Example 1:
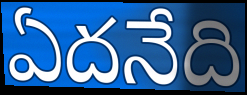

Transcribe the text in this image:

ఏదనేది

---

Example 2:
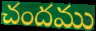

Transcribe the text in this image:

చందము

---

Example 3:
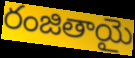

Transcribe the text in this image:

రంజితాయై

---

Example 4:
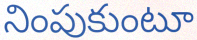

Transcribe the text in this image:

నింపుకుంటూ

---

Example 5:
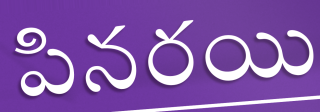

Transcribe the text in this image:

పినరయి